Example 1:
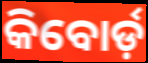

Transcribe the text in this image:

କିବୋର୍ଡ଼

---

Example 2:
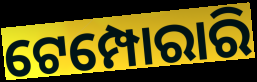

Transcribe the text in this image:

ଟେମ୍ପୋରାରି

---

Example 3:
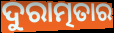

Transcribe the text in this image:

ଦୁରାତ୍ମତାର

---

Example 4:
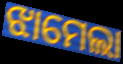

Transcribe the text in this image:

ଝାମେଲା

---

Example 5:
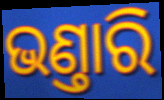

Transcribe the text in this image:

ଭଣ୍ତାରି